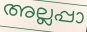
അല്ലപ്പാ